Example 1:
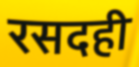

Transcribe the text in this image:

रसदही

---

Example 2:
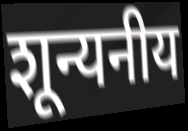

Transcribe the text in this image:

शून्यनीय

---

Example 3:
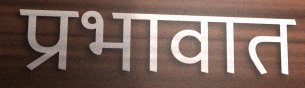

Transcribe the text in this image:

प्रभावात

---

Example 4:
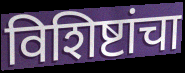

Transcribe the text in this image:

विशिष्टांचा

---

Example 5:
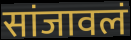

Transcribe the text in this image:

सांजावलं